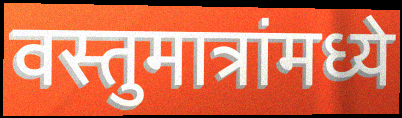
वस्तुमात्रांमध्ये